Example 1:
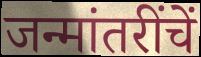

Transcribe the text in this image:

जन्मांतरींचें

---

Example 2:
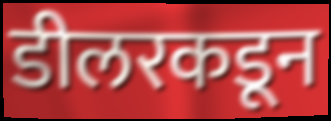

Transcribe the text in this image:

डीलरकडून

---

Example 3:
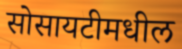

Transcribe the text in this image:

सोसायटीमधील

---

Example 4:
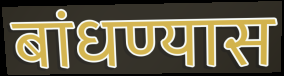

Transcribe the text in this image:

बांधण्यास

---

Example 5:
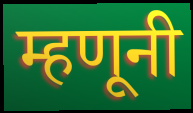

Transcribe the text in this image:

म्हणूनी